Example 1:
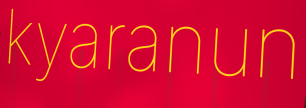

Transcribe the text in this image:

kyaranun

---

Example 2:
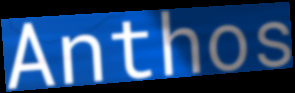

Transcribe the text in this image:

Anthos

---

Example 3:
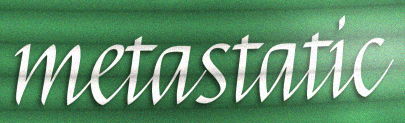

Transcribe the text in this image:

metastatic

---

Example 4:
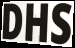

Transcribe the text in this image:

DHS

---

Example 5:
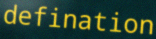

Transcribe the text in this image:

defination